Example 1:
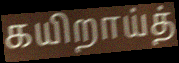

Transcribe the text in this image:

கயிறாய்த்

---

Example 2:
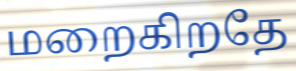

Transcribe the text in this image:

மறைகிறதே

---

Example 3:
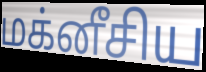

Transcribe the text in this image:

மக்னீசிய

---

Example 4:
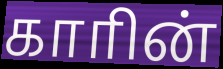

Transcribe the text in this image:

காரின்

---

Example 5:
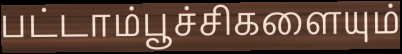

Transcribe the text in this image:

பட்டாம்பூச்சிகளையும்